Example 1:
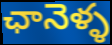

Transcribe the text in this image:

ఛానెళ్ళ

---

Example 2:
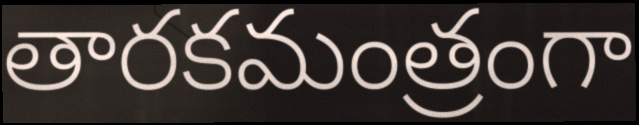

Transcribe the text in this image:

తారకమంత్రంగా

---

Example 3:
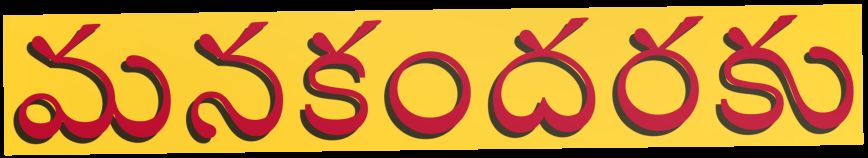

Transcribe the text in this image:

మనకందరకు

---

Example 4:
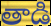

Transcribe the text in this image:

తాడి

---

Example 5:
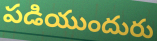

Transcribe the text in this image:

పడియుందురు